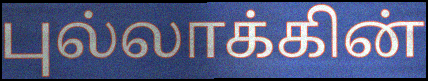
புல்லாக்கின்